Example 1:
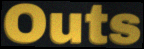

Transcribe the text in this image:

Outs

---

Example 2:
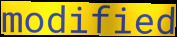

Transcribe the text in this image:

modified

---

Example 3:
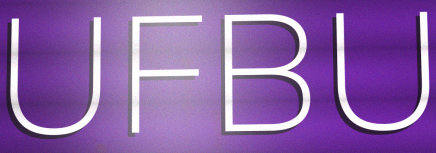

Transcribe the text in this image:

UFBU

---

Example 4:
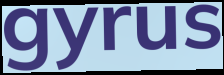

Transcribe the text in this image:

gyrus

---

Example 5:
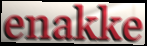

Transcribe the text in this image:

enakke